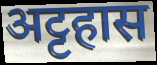
अट्टहास